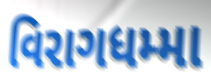
વિરાગધમ્મા